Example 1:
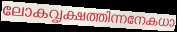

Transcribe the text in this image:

ലോകവൃക്ഷത്തിന്നനേകധാ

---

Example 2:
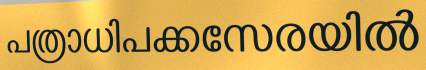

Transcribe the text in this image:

പത്രാധിപക്കസേരയിൽ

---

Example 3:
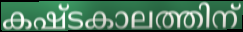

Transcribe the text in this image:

കഷ്ടകാലത്തിന്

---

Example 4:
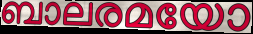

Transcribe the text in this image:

ബാലരമയോ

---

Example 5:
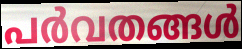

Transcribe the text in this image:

പർവതങ്ങൾ